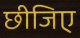
छीजिए